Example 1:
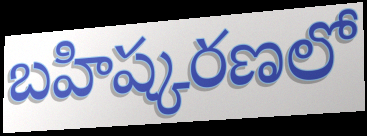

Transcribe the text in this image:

బహిష్కరణలో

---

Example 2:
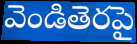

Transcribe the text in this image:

వెండితెరపై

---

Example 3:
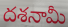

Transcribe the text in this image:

దశనామీ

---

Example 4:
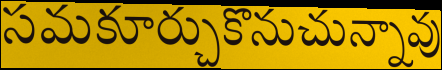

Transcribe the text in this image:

సమకూర్చుకొనుచున్నావు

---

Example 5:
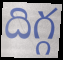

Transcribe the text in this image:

దిగ్గ